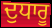
ਦੁਧਾਰੂ